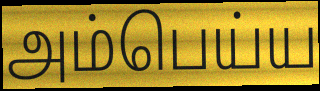
அம்பெய்ய